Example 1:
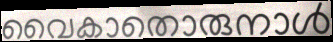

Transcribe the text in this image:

വൈകാതൊരുനാൾ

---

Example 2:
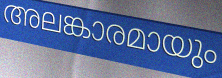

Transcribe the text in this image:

അലങ്കാരമായും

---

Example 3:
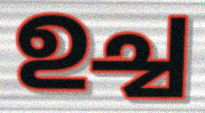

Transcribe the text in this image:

ഉച്ച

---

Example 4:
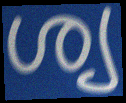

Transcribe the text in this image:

ശ്യ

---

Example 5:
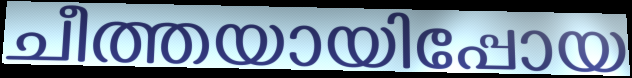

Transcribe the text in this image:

ചീത്തയായിപ്പോയ